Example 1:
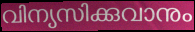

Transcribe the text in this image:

വിന്യസിക്കുവാനും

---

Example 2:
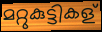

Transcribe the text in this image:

മറ്റുകുട്ടികള്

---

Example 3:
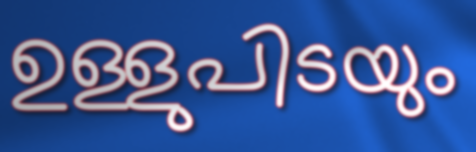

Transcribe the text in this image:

ഉള്ളുപിടയും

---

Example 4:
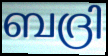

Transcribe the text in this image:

ബദ്രി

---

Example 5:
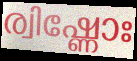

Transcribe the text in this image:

ര്വിഷ്ണോഃ